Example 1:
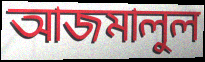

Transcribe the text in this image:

আজমালুল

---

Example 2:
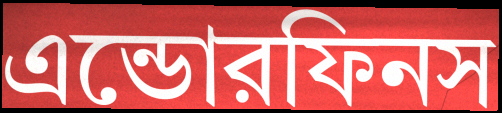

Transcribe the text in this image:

এন্ডোরফিনস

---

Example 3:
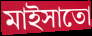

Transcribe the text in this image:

মাইসাতো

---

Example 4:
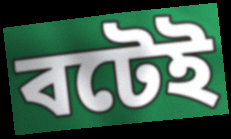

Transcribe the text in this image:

বটেই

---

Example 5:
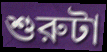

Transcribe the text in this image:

শুরুটা